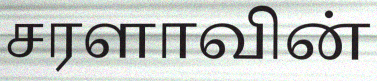
சரளாவின்